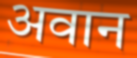
अवान